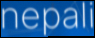
nepali